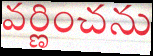
వర్ణించను